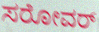
ಸರೋವರ್